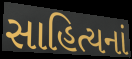
સાહિત્યનાં